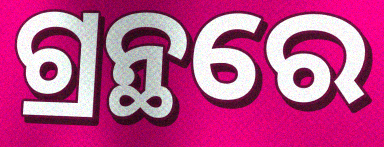
ଗ୍ରନ୍ଥରେ